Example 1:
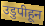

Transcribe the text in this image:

उडुपीहून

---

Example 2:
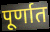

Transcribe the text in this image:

पूर्णात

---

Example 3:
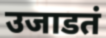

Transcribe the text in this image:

उजाडतं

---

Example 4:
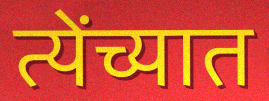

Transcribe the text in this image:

त्येंच्यात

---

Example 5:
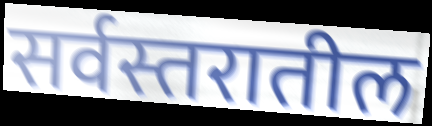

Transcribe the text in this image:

सर्वस्तरातील